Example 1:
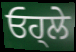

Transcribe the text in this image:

ਓਹ੍ਲੇ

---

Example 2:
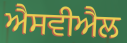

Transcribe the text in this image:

ਐਸਵੀਐਲ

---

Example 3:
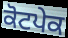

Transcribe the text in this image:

ਕੋਟਪੇਕ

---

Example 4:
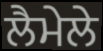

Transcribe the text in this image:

ਲੈਮੇਲੇ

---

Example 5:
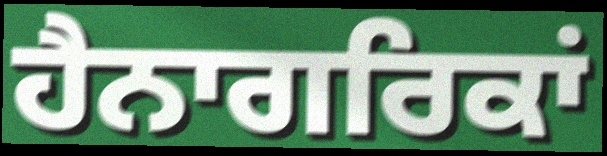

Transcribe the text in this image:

ਹੈਨਾਗਰਿਕਾਂ